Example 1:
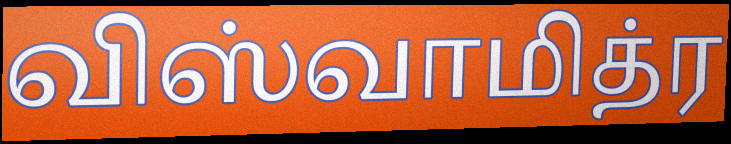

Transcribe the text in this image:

விஸ்வாமித்ர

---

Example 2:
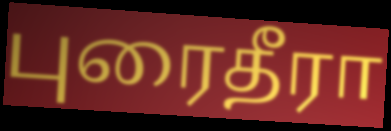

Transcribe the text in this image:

புரைதீரா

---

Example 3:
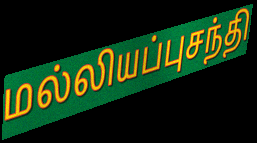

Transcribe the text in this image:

மல்லியப்புசந்தி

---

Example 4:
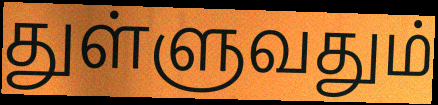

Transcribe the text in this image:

துள்ளுவதும்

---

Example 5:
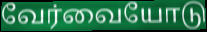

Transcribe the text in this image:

வேர்வையோடு